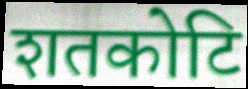
शतकोटि